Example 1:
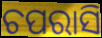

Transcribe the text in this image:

ଚପରାସି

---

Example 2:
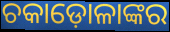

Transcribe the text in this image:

ଚକାଡ଼ୋଳାଙ୍କର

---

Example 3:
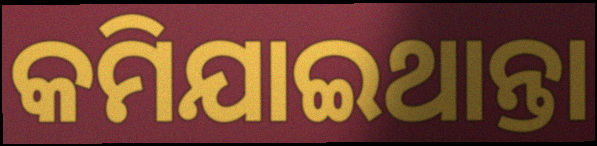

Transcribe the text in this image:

କମିଯାଇଥାନ୍ତା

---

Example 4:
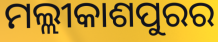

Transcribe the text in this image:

ମଲ୍ଲୀକାଶପୁରର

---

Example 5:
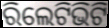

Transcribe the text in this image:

ରିଲେଟିଭିଟି